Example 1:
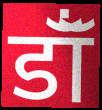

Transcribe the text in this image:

डॉँ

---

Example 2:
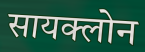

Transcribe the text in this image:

सायक्लोन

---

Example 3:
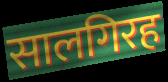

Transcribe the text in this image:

सालगिरह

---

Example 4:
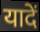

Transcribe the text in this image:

यादें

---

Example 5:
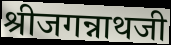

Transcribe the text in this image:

श्रीजगन्नाथजी